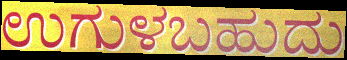
ಉಗುಳಬಹುದು